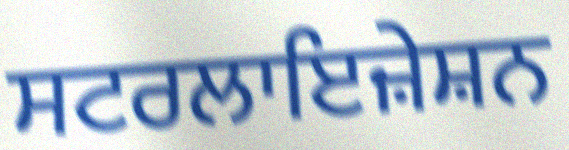
ਸਟਰਲਾਇਜ਼ੇਸ਼ਨ